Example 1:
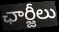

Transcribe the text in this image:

ఛార్జీలు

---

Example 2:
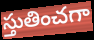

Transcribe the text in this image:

స్తుతించగా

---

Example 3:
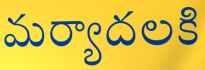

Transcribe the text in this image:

మర్యాదలకి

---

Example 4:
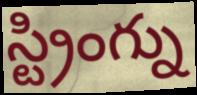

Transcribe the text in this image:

స్ట్రింగ్ను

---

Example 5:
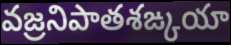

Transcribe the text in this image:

వజ్రనిపాతశఙ్కయా